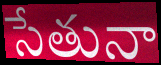
సేతునా